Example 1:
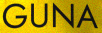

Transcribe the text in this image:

GUNA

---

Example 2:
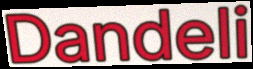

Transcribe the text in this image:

Dandeli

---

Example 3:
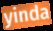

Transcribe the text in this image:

yinda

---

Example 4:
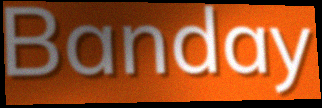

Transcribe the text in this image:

Banday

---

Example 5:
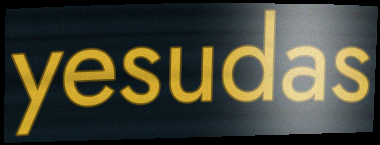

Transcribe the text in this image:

yesudas